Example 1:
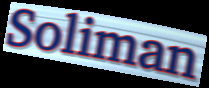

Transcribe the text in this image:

Soliman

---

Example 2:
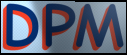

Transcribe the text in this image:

DPM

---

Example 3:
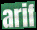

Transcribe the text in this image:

arif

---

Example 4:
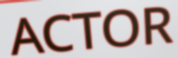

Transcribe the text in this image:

ACTOR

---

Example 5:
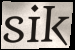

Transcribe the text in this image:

sik